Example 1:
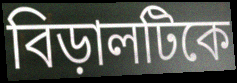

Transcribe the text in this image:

বিড়ালটিকে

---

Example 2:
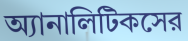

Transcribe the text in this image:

অ্যানালিটিকসের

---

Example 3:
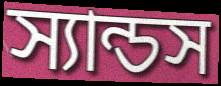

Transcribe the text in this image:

স্যান্ডস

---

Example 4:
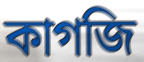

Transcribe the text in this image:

কাগজি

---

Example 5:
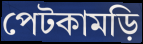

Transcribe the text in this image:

পেটকামড়ি